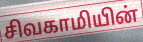
சிவகாமியின்